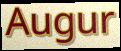
Augur